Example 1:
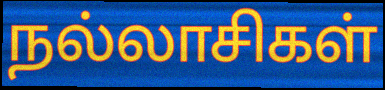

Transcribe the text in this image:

நல்லாசிகள்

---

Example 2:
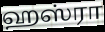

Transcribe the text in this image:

ஹஸ்ரா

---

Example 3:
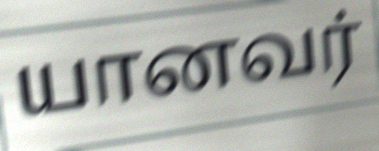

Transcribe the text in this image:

யானவர்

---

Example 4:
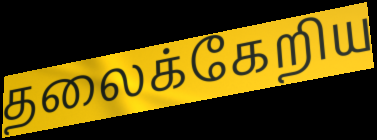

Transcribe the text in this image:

தலைக்கேறிய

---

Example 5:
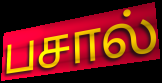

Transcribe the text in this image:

பசால்